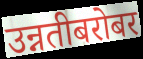
उन्नतीबरोबर